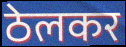
ठेलकर